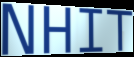
NHIT